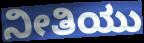
ನೀತಿಯು